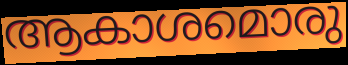
ആകാശമൊരു